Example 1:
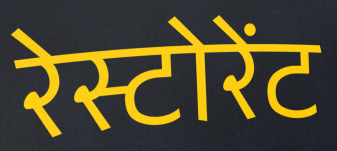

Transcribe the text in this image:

रेस्‍टोरेंट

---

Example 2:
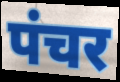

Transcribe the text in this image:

पंचर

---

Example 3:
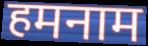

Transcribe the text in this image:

हमनाम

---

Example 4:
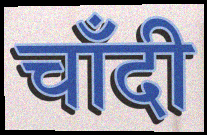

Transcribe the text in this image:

चाँदी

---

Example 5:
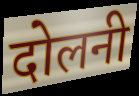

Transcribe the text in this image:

दोलनी